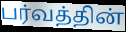
பர்வத்தின்